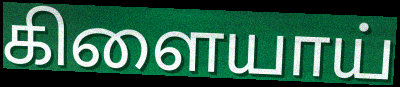
கிளையாய்